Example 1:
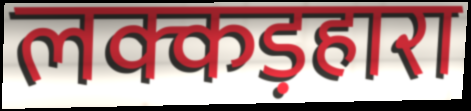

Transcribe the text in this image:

लक्कड़हारा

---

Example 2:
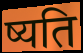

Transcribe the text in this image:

ष्यति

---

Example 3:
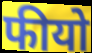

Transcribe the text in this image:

फीयो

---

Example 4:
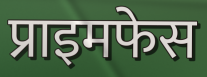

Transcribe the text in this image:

प्राइमफेस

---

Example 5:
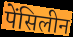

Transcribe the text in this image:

पेंसिलीन